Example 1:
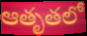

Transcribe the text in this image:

ఆతృతలో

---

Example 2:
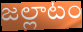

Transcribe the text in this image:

జల్లాటం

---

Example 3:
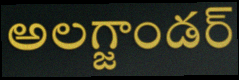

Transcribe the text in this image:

అలగ్జాండర్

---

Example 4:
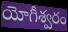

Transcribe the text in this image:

యోగీశ్వరం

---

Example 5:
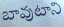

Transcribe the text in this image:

బావుటాని